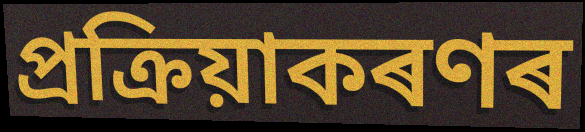
প্ৰক্ৰিয়াকৰণৰ